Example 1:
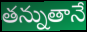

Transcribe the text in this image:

తన్నుతానే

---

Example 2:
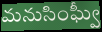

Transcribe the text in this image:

మనుసింఘ్వీ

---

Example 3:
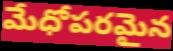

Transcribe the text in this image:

మేధోపరమైన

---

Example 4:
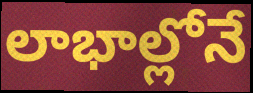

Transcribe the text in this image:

లాభాల్లోనే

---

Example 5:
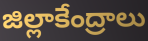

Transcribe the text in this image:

జిల్లాకేంద్రాలు